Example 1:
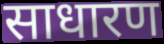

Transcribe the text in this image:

साधारण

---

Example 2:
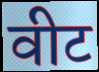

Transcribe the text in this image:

वीट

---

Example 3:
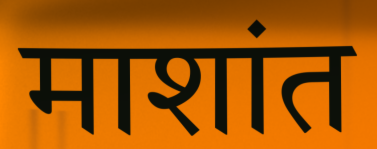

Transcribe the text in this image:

माशांत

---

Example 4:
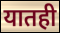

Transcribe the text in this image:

यातही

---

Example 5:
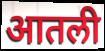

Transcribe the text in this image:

आतली